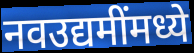
नवउद्यमींमध्ये